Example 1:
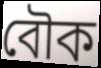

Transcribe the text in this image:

বৌক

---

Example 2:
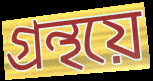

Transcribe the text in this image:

গ্ৰন্থয়ে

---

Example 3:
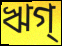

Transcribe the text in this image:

ঋগ্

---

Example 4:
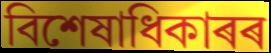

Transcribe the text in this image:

বিশেষাধিকাৰৰ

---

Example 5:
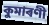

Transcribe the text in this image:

কুমাৰণী